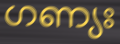
ഗണ്യഃ